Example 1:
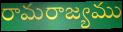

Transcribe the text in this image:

రామరాజ్యము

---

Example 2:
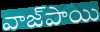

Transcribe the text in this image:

వాజ్‌పాయి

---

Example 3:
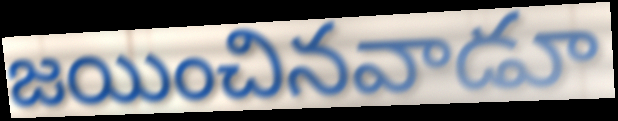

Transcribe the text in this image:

జయించినవాడూ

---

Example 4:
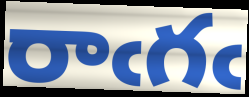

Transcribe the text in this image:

రాఁగఁ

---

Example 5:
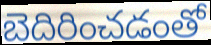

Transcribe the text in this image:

బెదిరించడంతో